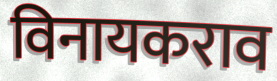
विनायकराव